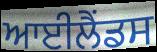
ਆਈਲੈਂਡਸ